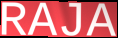
RAJA